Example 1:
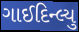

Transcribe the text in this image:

ગાઈદિન્લ્યુ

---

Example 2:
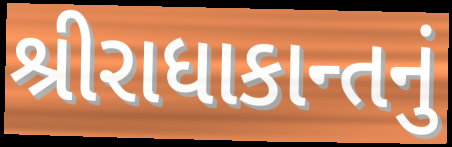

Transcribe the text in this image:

શ્રીરાધાકાન્તનું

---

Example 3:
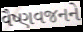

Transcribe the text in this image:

વૈષ્ણવજનને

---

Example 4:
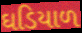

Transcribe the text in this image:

ઘડિયાળ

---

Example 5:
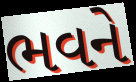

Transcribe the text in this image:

ભવને